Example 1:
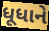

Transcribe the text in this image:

ધૂધાને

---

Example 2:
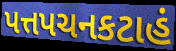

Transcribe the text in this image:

પત્તપચનકટાહં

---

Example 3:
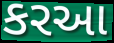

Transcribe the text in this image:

કરઆ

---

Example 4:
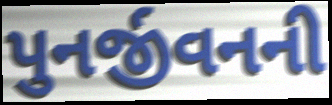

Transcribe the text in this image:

પુનર્જીવનની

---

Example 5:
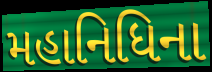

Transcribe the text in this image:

મહાનિધિના